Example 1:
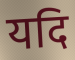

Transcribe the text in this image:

यदि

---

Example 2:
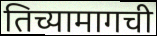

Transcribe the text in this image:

तिच्यामागची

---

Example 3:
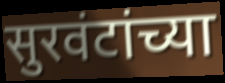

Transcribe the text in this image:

सुरवंटांच्या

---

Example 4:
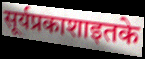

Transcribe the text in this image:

सूर्यप्रकाशाइतके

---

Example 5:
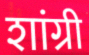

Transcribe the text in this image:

शांग्री